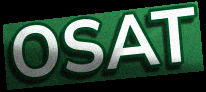
OSAT